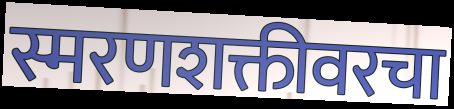
स्मरणशक्तीवरचा